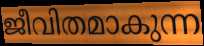
ജീവിതമാകുന്ന